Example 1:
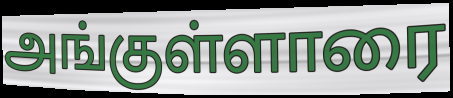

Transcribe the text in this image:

அங்குள்ளாரை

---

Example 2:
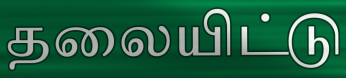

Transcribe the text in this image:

தலையிட்டு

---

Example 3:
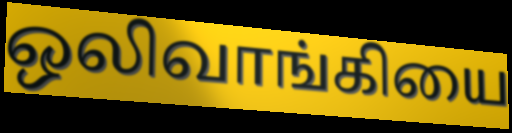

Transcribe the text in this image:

ஒலிவாங்கியை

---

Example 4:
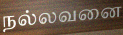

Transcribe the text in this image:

நல்லவனை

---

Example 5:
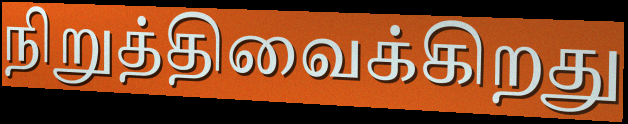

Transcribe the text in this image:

நிறுத்திவைக்கிறது